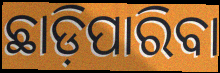
ଛାଡ଼ିପାରିବା